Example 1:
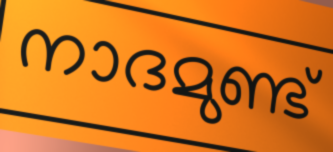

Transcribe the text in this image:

നാദമുണ്ട്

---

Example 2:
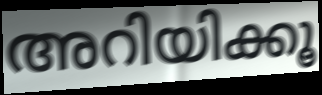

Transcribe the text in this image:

അറിയിക്കൂ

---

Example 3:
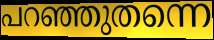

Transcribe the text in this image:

പറഞ്ഞുതന്നെ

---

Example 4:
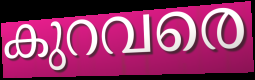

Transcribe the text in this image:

കുറവരെ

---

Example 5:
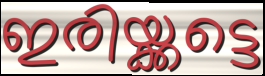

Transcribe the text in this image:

ഇരിയ്ക്കട്ടെ